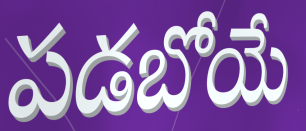
పడబోయే